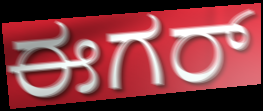
ಈಗರ್